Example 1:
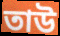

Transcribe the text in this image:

তাউ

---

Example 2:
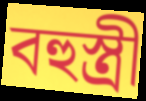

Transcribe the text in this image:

বহুস্ত্ৰী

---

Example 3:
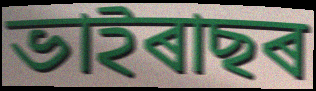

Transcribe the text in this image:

ভাইৰাছৰ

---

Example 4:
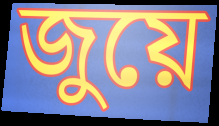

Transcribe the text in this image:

জুয়ে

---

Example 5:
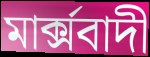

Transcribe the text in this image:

মাৰ্ক্সবাদী